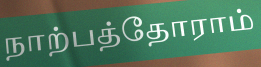
நாற்பத்தோராம்